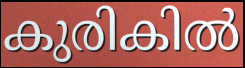
കുരികിൽ